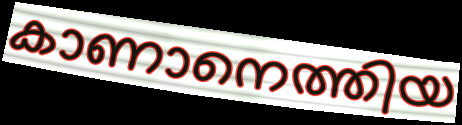
കാണാനെത്തിയ